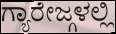
ಗ್ಯಾರೇಜ್ಗಳಲ್ಲಿ